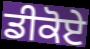
ਡੀਕੋਏ